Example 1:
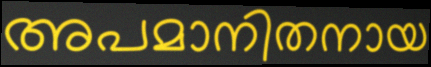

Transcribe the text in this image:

അപമാനിതനായ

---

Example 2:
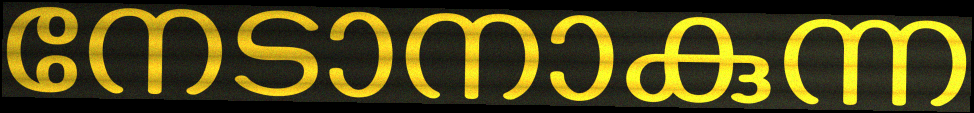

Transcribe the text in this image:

നേടാനാകുന്ന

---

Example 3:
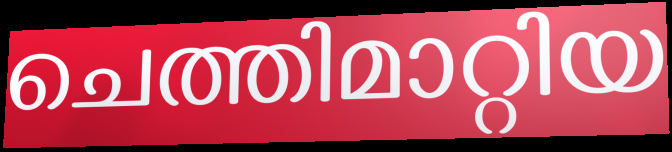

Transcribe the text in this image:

ചെത്തിമാറ്റിയ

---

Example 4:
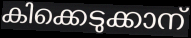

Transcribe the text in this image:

കിക്കെടുക്കാന്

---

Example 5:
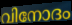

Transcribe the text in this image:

വിനോദം